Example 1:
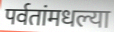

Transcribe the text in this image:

पर्वतांमधल्या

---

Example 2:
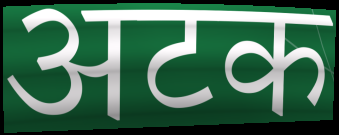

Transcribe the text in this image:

अटक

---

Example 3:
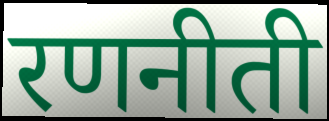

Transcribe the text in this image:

रणनीती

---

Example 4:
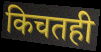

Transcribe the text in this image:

किचतही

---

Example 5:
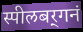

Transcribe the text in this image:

स्पीलबर्गनं